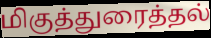
மிகுத்துரைத்தல்